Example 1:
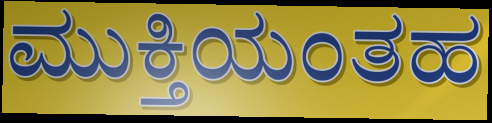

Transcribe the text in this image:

ಮುಕ್ತಿಯಂತಹ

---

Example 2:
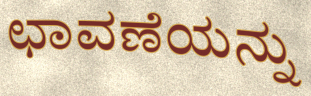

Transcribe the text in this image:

ಛಾವಣೆಯನ್ನು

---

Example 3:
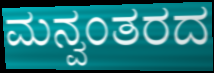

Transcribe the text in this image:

ಮನ್ವಂತರದ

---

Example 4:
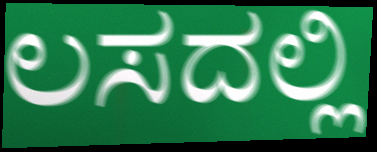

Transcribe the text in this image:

ಲಸದಲ್ಲಿ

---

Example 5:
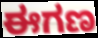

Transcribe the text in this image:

ಈಗಣ